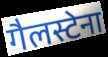
गैलस्टेना